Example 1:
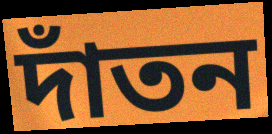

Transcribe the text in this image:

দাঁতন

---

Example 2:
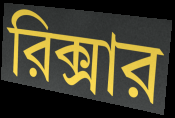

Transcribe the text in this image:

রিক্সার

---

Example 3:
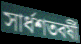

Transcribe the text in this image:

সার্ধশতবর্ষী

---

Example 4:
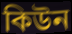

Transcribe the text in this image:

কিউন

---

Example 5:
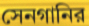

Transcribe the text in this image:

সেনগানির